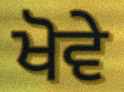
ਖੋਵੇ